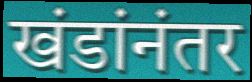
खंडांनंतर